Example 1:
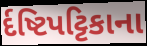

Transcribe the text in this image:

ર્દષ્ટિપટ્ટિકાના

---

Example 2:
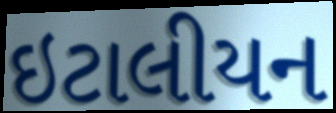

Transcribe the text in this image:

ઇટાલીયન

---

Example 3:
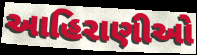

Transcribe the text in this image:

આહિરાણીઓ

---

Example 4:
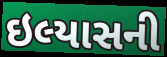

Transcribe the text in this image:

ઇલ્યાસની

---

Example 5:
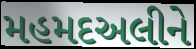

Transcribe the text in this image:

મહમદઅલીને